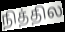
நித்தில